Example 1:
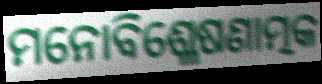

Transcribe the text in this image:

ମନୋବିଶ୍ଳେଷଣାତ୍ମକ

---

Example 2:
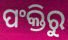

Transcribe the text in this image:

ପଂକ୍ତିରୁ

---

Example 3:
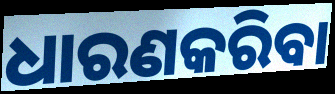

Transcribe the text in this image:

ଧାରଣକରିବା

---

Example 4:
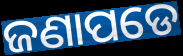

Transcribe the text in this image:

ଜଣାପଡେ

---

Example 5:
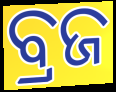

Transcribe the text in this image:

ବ୍ରଜ